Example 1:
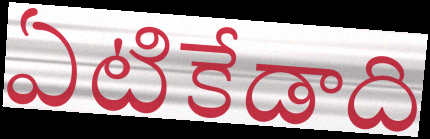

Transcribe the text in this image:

ఏటికేడాది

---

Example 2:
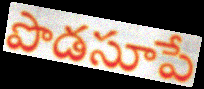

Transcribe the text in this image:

పొడసూపే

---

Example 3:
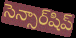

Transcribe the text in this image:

సెన్సార్‌షిప్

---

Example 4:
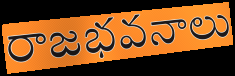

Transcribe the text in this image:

రాజభవనాలు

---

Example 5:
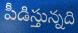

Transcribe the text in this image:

పీడిస్తున్నది